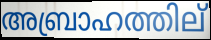
അബ്രാഹത്തില്